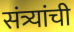
संत्र्यांची